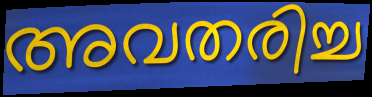
അവതരിച്ച